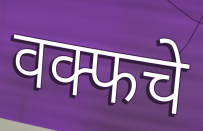
वक्फचे